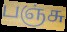
பஞ்சு